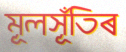
মূলসূঁতিৰ